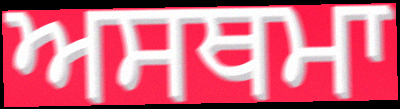
ਅਸਥਮਾ